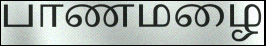
பாணமழை